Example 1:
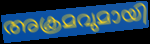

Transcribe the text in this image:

അക്രമവുമായി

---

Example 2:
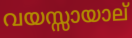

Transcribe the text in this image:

വയസ്സായാല്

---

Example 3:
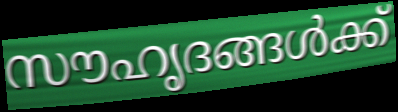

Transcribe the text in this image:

സൗഹൃദങ്ങൾക്ക്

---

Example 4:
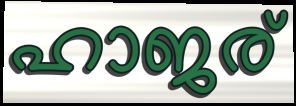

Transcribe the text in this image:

ഹാജര്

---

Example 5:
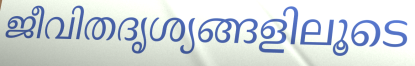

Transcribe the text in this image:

ജീവിതദൃശ്യങ്ങളിലൂടെ